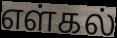
எள்கல்